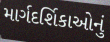
માર્ગદર્શિકાઓનું